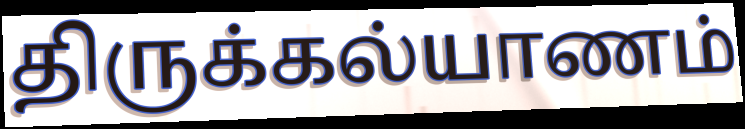
திருக்கல்யாணம்